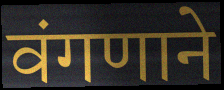
वंगणाने